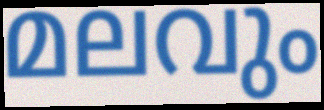
മലവും